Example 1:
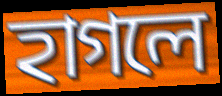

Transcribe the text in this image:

হাগলে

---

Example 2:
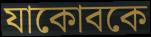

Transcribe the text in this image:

যাকোবকে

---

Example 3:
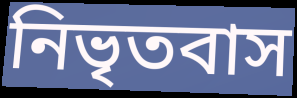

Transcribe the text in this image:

নিভৃতবাস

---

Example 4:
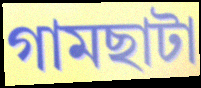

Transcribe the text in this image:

গামছাটা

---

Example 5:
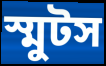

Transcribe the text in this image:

স্মুটস